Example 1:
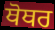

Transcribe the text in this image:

ਥੋਥਰ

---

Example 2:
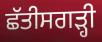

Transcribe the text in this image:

ਛੱਤੀਸਗੜ੍ਹੀ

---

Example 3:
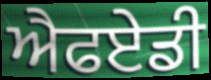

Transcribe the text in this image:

ਐਫਏਡੀ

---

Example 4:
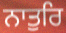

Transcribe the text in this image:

ਨਾਤੁਰਿ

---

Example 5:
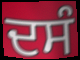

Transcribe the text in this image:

ਦਸੰ